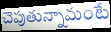
చెపుతున్నామంటే